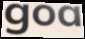
goa